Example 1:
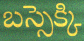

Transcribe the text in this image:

బస్సెక్కి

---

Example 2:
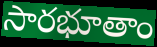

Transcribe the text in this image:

సారభూతాం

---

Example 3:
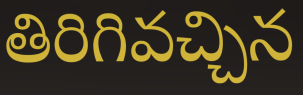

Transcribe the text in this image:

తిరిగివచ్చిన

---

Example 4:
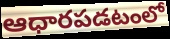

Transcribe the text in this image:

ఆధారపడటంలో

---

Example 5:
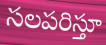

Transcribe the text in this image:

సలపరిస్తూ